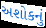
અશોકનું